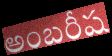
అంబరీష